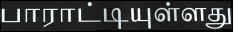
பாராட்டியுள்ளது